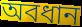
অবধান